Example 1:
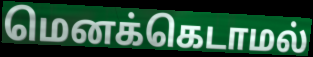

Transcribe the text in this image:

மெனக்கெடாமல்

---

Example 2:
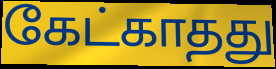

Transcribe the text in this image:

கேட்காதது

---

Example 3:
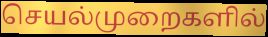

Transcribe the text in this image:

செயல்முறைகளில்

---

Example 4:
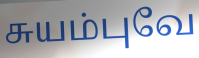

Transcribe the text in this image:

சுயம்புவே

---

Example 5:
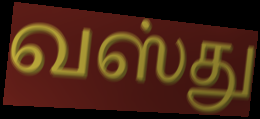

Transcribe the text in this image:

வஸ்து